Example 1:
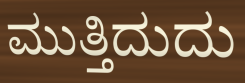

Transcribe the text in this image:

ಮುತ್ತಿದುದು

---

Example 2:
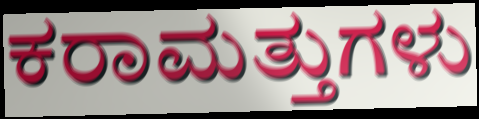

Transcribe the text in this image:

ಕರಾಮತ್ತುಗಳು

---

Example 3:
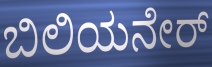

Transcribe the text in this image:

ಬಿಲಿಯನೇರ್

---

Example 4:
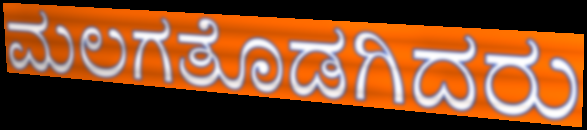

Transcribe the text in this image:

ಮಲಗತೊಡಗಿದರು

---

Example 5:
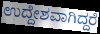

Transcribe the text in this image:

ಉದ್ದೇಶವಾಗಿದ್ದರೆ